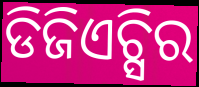
ଡିଜିଏଚ୍ସିର